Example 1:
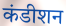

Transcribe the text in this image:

कंडीशन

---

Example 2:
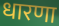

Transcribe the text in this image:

धारणा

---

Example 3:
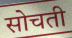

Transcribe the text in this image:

सोचती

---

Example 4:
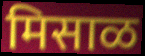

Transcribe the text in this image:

मिसाळ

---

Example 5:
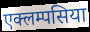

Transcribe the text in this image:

एक्लम्पसिया